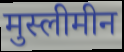
मुस्लीमीन